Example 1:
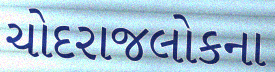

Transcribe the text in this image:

ચોદરાજલોકના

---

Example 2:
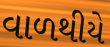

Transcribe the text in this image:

વાળથીયે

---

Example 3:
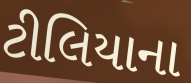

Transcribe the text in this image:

ટીલિયાના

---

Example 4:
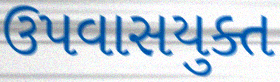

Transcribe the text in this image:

ઉપવાસયુક્ત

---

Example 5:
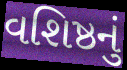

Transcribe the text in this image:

વશિષ્ઠનું